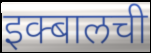
इक्बालची